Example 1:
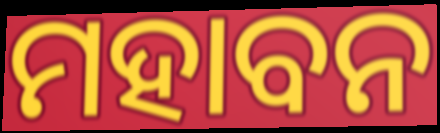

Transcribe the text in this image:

ମହାବନ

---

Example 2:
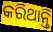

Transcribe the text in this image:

କରିଥାନ୍ତି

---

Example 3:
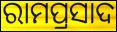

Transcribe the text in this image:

ରାମପ୍ରସାଦ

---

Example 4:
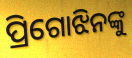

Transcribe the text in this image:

ପ୍ରିଗୋଝିନଙ୍କୁ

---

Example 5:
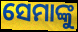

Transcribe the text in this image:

ସେମାଙ୍କୁ